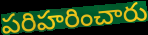
పరిహరించారు